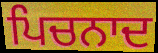
ਪਿਚਨਾਦ